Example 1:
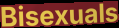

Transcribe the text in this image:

Bisexuals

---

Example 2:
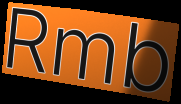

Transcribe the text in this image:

Rmb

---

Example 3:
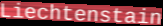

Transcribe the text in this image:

Liechtenstain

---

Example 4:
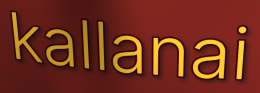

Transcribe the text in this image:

kallanai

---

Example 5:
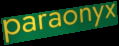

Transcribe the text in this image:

paraonyx